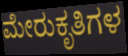
ಮೇರುಕೃತಿಗಳ